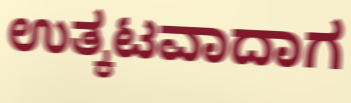
ಉತ್ಕಟವಾದಾಗ